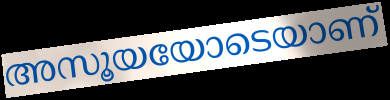
അസൂയയോടെയാണ്